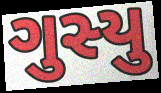
ગુસ્યુ